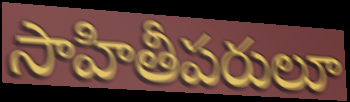
సాహితీపరులూ